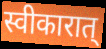
स्वीकारात्